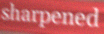
sharpened